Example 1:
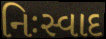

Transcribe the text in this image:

નિઃસ્વાદ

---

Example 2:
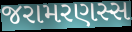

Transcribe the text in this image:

જરામરણસ્સ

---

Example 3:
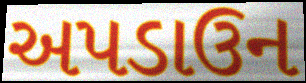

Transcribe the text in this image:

અપડાઉન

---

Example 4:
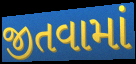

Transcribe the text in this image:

જીતવામાં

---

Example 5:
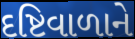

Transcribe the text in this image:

દષ્ટિવાળાને